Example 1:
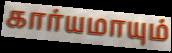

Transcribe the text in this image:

கார்யமாயும்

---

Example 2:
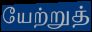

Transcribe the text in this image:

யேற்றுத்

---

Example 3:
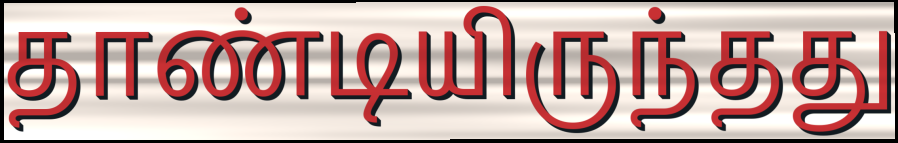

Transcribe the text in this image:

தாண்டியிருந்தது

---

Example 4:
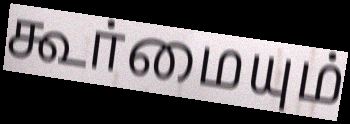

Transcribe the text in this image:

கூர்மையும்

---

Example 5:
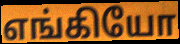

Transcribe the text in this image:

எங்கியோ